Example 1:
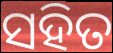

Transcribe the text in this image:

ସହିତ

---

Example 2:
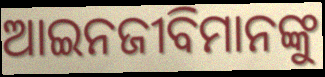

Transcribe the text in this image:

ଆଇନଜୀବିମାନଙ୍କୁ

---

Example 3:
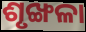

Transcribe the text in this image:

ଶୃଙ୍ଖଳା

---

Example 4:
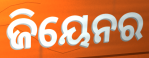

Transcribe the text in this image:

ଜିୟେନର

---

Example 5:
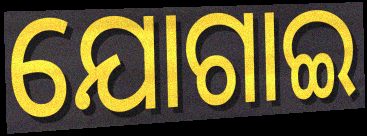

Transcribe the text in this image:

ଯୋଗାଇ